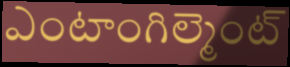
ఎంటాంగిల్మెంట్